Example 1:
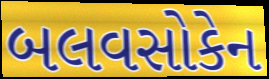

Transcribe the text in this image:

બલવસોકેન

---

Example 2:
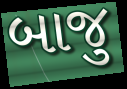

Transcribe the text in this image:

બાજુ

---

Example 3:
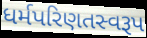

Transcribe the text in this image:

ધર્મપરિણતસ્વરૂપ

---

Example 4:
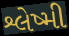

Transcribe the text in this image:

શ્લેષ્મી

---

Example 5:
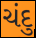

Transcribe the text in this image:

ચંદુ